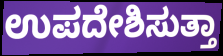
ಉಪದೇಶಿಸುತ್ತಾ